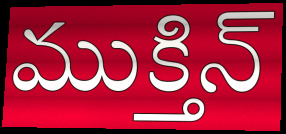
ముక్తిన్